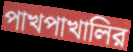
পাখপাখালির